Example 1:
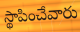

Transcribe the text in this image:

స్థాపించేవారు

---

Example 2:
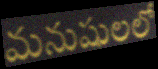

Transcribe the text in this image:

మనుషులలో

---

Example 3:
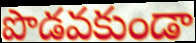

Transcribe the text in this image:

పొడవకుండా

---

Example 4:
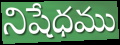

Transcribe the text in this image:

నిషేధము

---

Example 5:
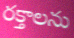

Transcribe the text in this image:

రక్తాలను